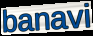
banavi